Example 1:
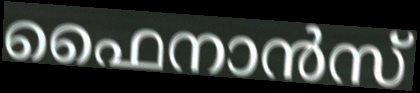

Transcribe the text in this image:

ഫൈനാൻസ്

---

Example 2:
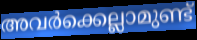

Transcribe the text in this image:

അവർക്കെല്ലാമുണ്ട്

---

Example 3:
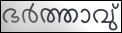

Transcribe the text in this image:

ഭർത്താവു്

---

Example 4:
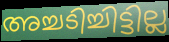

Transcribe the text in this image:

അച്ചടിച്ചിട്ടില്ല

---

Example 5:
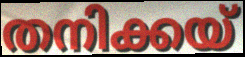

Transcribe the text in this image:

തനിക്കയ്